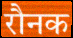
रौनक